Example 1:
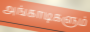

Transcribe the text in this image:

அங்காடிகளும்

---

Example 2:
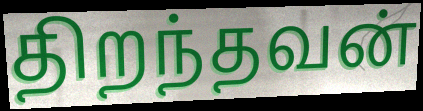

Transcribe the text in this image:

திறந்தவன்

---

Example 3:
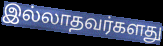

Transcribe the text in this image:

இல்லாதவர்களது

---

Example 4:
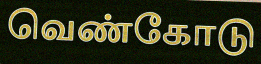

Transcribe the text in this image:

வெண்கோடு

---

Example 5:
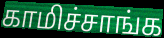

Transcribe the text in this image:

காமிச்சாங்க